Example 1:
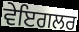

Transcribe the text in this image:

ਵੇਇਗਲਰ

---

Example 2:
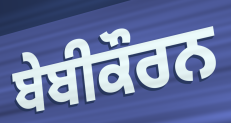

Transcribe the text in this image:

ਬੇਬੀਕੌਰਨ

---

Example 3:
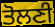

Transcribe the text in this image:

ਤੋਲਣੀ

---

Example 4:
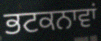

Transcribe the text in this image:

ਭਟਕਨਾਵਾਂ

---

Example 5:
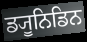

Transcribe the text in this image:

ਡ੍ਯੂਨਿਡਿਨ